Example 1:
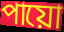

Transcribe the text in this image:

পায়ো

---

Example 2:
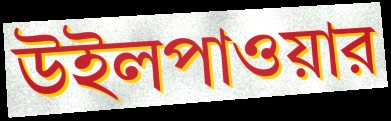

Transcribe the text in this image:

উইলপাওয়ার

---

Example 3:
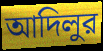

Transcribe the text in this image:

আদিলুর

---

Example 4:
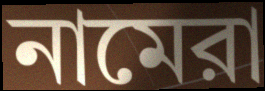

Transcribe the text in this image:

নামেরা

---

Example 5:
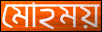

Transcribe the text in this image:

মোহময়